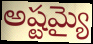
అష్టమ్యై